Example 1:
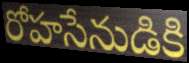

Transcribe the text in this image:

రోహసేనుడికి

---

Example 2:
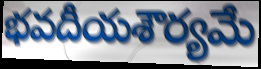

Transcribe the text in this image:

భవదీయశౌర్యమే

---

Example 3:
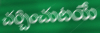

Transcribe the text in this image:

చర్చించుటయే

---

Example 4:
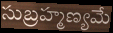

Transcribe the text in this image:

సుబ్రహ్మణ్యమే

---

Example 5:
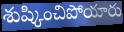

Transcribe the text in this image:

శుష్కించిపోయారు